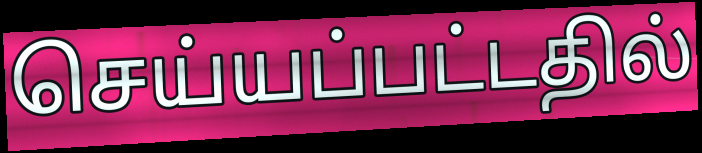
செய்யப்பட்டதில்